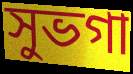
সুভগা